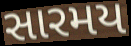
સારમય